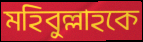
মহিবুল্লাহকে